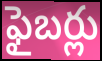
ఫైబర్లు